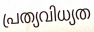
പ്രത്യവിധ്യത